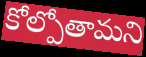
కోల్పోతామని